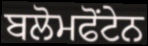
ਬਲੋਮਫੋਂਟੇਨ